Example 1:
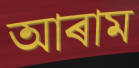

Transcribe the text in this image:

আৰাম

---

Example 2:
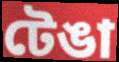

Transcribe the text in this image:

টেঙা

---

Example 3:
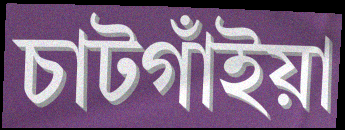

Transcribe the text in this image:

চাটগাঁইয়া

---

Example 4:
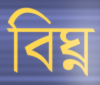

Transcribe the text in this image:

বিঘ্ন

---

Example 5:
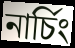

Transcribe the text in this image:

নাৰ্চিং